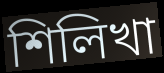
শিলিখা